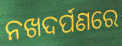
ନଖଦର୍ପଣରେ